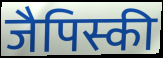
जैपिस्की